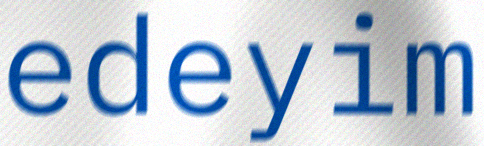
edeyim